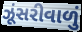
ઝૂંસરીવાળું